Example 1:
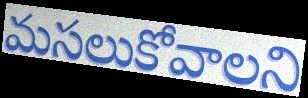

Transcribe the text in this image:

మసలుకోవాలని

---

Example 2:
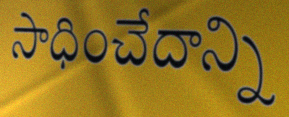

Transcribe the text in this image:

సాధించేదాన్ని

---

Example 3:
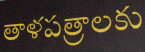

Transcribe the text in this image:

తాళపత్రాలకు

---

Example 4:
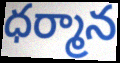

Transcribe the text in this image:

ధర్మాన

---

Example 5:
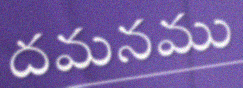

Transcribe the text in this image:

దమనము